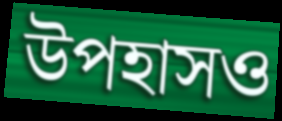
উপহাসও